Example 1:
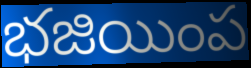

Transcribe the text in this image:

భజియింప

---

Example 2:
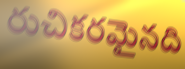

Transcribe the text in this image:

రుచికరమైనది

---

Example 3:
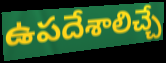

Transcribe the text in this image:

ఉపదేశాలిచ్చే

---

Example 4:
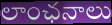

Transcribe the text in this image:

లాంఛనాలు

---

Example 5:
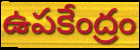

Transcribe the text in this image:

ఉపకేంద్రం